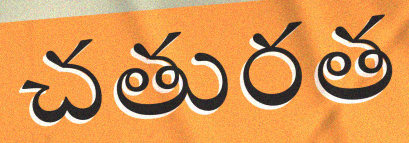
చతురత